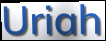
Uriah